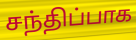
சந்திப்பாக